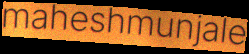
maheshmunjale